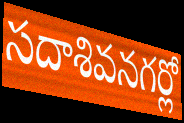
సదాశివనగర్లో